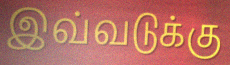
இவ்வடுக்கு